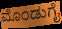
ಮೊಂಡುಗೈ